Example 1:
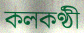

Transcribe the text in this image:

কলকণ্ঠী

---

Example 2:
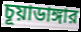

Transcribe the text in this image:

চূয়াডাঙ্গার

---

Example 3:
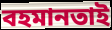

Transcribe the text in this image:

বহমানতাই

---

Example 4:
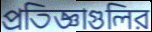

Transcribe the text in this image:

প্রতিজ্ঞাগুলির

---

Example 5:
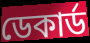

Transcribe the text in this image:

ডেকার্ড